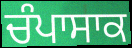
ਚੰਪਾਸਾਕ